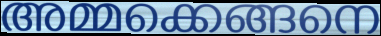
അമ്മക്കെങ്ങനെ